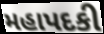
મહાપદકી